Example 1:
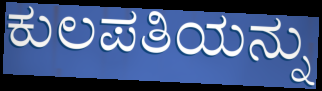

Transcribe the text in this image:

ಕುಲಪತಿಯನ್ನು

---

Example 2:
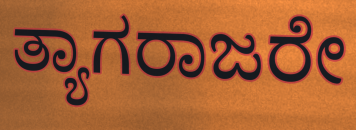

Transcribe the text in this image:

ತ್ಯಾಗರಾಜರೇ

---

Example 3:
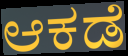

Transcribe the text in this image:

ಆಕಡೆ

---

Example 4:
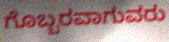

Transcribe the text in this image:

ಗೊಬ್ಬರವಾಗುವರು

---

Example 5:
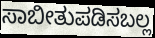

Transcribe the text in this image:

ಸಾಬೀತುಪಡಿಸಬಲ್ಲ